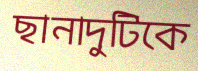
ছানাদুটিকে